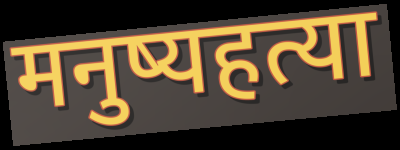
मनुष्यहत्या